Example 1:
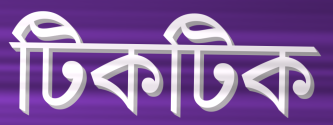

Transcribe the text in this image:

টিকটিক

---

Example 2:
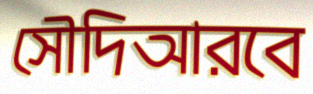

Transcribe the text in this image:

সৌদিআরবে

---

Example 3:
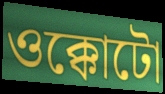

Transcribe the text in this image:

ওক্কোটো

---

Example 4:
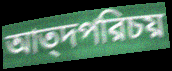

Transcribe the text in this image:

আত্দপরিচয়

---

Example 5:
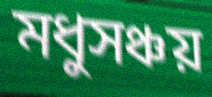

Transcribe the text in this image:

মধুসঞ্চয়